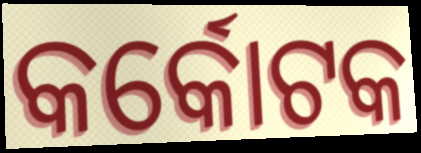
କର୍କୋଟକ